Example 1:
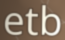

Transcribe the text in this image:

etb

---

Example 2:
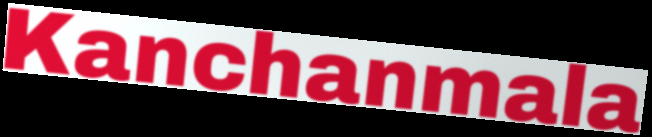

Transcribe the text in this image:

Kanchanmala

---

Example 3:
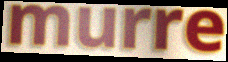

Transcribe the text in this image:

murre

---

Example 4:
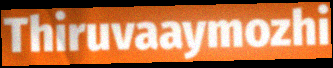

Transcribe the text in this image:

Thiruvaaymozhi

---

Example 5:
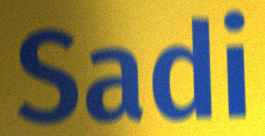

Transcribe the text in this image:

Sadi